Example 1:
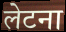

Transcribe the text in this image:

लेटना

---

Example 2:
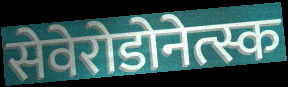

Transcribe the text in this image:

सेवेरोडोनेत्स्क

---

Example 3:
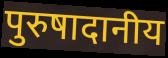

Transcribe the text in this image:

पुरुषादानीय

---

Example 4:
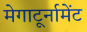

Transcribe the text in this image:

मेगाटूर्नामेंट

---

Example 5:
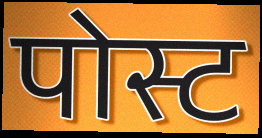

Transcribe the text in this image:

पोस्ट